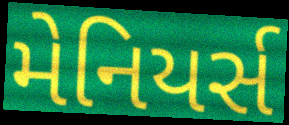
મેનિયર્સ